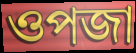
ওপজা